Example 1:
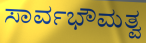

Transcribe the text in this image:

ಸಾರ್ವಭೌಮತ್ವ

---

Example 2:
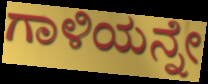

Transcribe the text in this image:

ಗಾಳಿಯನ್ನೇ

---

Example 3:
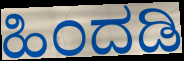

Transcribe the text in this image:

ಹಿಂದಡಿ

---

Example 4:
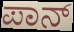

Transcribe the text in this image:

ಪಾನ್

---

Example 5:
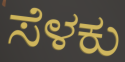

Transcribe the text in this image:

ಸೆಳಕು